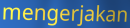
mengerjakan